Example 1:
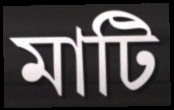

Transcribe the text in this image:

মাটি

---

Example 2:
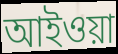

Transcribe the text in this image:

আইওয়া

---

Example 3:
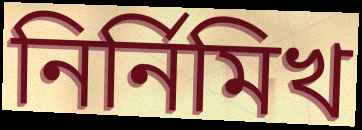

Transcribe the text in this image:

নির্নিমিখ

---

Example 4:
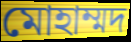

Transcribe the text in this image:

মোহাম্মদ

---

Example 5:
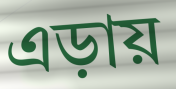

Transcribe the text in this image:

এড়ায়